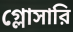
গ্লোসারি